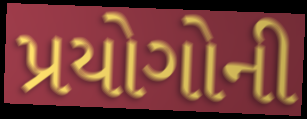
પ્રયોગોની